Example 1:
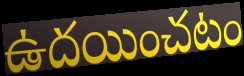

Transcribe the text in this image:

ఉదయించటం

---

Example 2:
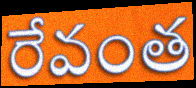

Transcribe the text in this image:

రేవంత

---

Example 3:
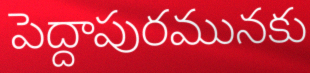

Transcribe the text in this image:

పెద్దాపురమునకు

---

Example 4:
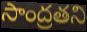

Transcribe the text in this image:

సాంద్రతని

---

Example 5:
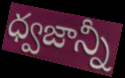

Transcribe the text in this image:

ధ్వజాన్నీ